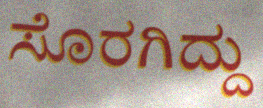
ಸೊರಗಿದ್ದು